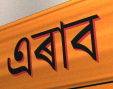
এৰাব